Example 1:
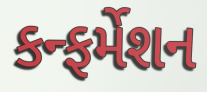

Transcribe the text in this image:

કન્ફર્મેશન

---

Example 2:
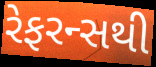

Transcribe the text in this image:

રેફરન્સથી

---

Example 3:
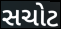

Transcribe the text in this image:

સચોટ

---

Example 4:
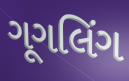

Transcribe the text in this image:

ગૂગલિંગ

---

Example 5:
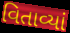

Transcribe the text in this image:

વિતાવ્યાં